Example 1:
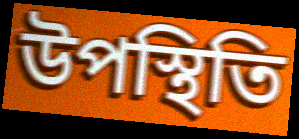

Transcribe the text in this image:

উপস্থিতি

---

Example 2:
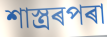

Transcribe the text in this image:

শাস্ত্ৰৰপৰা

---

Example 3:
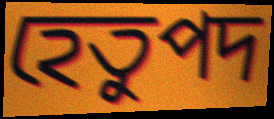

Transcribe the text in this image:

হেতুপদ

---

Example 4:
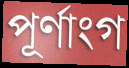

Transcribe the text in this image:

পূৰ্ণাংগ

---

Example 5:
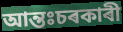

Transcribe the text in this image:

আন্তঃচৰকাৰী